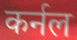
कर्नल